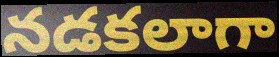
నడకలాగా